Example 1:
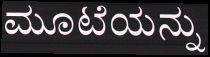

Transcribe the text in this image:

ಮೂಟೆಯನ್ನು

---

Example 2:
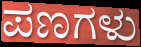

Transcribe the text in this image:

ಪಣಗಳು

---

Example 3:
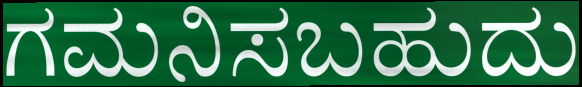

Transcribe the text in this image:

ಗಮನಿಸಬಹುದು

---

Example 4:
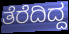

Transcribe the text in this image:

ತೆರೆದಿದ್ದ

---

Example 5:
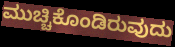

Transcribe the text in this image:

ಮುಚ್ಚಿಕೊಂಡಿರುವುದು